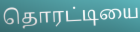
தொரட்டியை